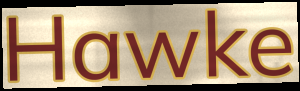
Hawke